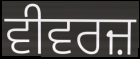
ਵੀਵਰਜ਼